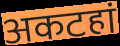
अकटहां